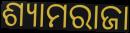
ଶ୍ୟାମରାଜା